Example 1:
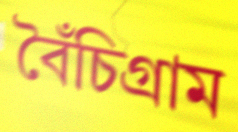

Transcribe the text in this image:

বৈঁচিগ্রাম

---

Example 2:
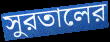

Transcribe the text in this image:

সুরতালের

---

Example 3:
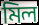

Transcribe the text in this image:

মিল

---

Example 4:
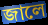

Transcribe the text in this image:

জালে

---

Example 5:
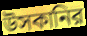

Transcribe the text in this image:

উসকানির